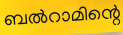
ബൽറാമിന്റെ